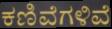
ಕಣಿವೆಗಳಿವೆ